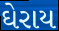
ઘેરાય